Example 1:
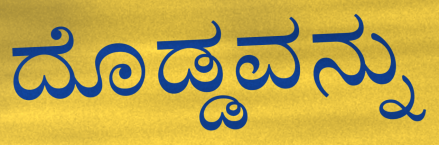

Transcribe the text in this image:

ದೊಡ್ಡವನ್ನು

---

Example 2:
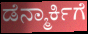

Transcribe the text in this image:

ಡೆನ್ಮಾರ್ಕಿಗೆ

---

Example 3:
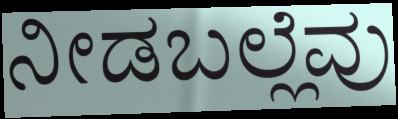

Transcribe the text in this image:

ನೀಡಬಲ್ಲೆವು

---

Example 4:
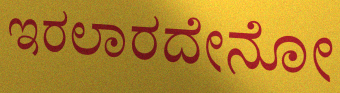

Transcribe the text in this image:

ಇರಲಾರದೇನೋ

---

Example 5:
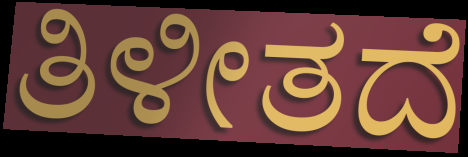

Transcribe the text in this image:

ತಿಳೀತದೆ